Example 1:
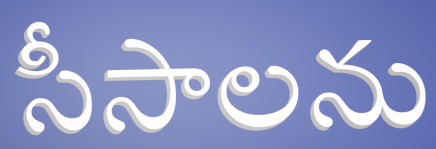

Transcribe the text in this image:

సీసాలను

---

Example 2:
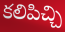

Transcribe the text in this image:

కలిపిచ్చి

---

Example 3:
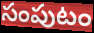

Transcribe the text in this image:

సంపుటం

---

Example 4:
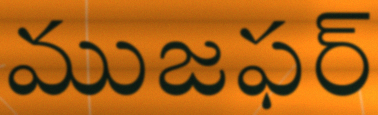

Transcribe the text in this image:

ముజఫర్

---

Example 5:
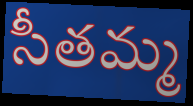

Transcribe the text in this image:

సీతమ్మ